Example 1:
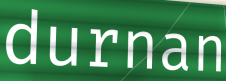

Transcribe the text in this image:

durnan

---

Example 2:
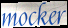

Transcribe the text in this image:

mocker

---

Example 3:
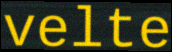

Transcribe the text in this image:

velte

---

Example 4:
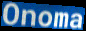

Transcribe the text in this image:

Onoma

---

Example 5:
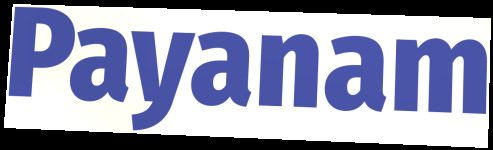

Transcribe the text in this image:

Payanam